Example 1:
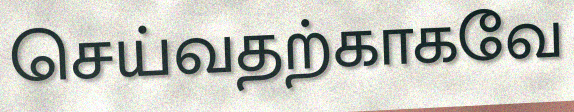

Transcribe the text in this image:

செய்வதற்காகவே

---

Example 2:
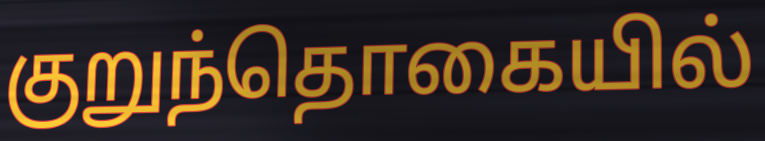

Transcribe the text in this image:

குறுந்தொகையில்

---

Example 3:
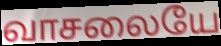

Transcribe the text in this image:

வாசலையே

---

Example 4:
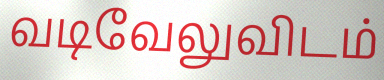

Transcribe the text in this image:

வடிவேலுவிடம்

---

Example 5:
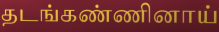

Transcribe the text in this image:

தடங்கண்ணினாய்